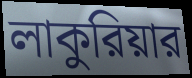
লাকুরিয়ার